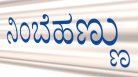
ನಿಂಬೆಹಣ್ಣು